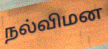
நல்விமன